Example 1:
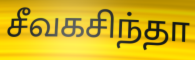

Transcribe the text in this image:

சீவகசிந்தா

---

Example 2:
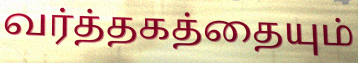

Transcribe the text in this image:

வர்த்தகத்தையும்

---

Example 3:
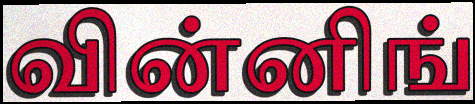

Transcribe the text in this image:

வின்னிங்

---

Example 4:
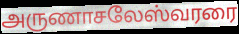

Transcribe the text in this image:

அருணாசலேஸ்வரரை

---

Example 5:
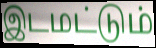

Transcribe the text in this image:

இடமட்டும்